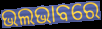
ଭଲଭାବରେ